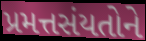
પ્રમત્તસંયતોને